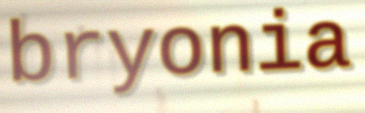
bryonia